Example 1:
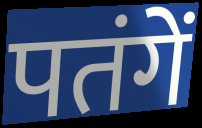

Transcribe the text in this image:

पतंगें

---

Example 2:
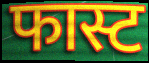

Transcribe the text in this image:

फास्ट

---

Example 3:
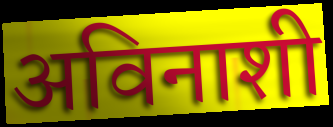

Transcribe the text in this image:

अविनाशी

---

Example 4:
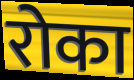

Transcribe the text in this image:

रोका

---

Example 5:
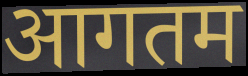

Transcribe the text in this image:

आगतम